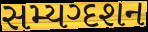
સમ્યગ્દશન